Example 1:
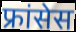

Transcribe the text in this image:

फ्रांसेस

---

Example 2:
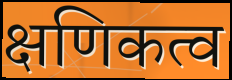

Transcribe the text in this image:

क्षणिकत्व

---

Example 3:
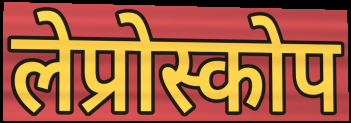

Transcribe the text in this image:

लेप्रोस्कोप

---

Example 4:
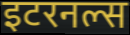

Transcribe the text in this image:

इटरनल्स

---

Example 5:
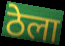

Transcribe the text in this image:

ठेला